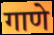
गाणे